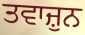
ਤਵਾਜ਼ੁਨ